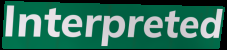
Interpreted